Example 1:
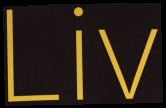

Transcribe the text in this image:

Liv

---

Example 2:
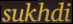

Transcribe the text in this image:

sukhdi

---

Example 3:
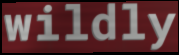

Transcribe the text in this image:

wildly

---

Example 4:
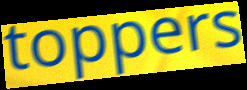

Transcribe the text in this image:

toppers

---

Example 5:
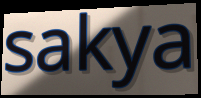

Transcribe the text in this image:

sakya